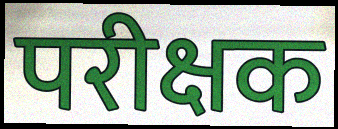
परीक्षक